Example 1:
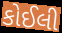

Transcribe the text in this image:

કોઈલી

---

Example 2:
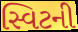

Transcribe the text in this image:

સ્વિટની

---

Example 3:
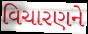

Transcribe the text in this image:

વિચારણને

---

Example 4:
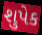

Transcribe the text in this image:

શુપેક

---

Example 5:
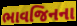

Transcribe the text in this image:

ભાવજિનના